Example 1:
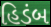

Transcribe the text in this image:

હિડંબ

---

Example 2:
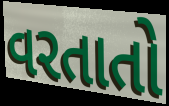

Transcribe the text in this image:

વરતાતો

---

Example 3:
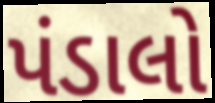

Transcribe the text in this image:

પંડાલો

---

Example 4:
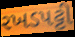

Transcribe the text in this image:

રખડપટ્ટી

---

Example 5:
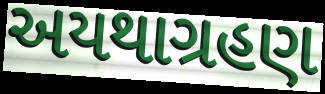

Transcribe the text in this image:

અયથાગ્રહણ